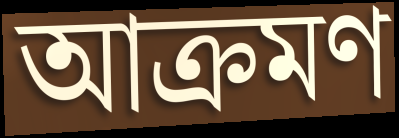
আক্ৰমণ